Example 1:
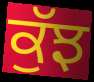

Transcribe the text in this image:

ਕੁੱਝ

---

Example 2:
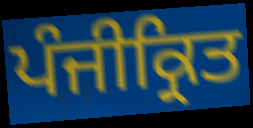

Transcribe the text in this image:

ਪੰਜੀਕ੍ਰਿਤ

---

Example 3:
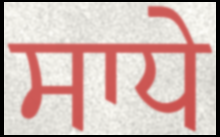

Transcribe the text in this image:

ਸਾਧੇ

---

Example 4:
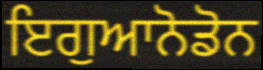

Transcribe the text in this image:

ਇਗੁਆਨੋਡੋਨ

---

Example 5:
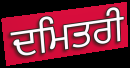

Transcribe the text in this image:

ਦਮਿਤਰੀ